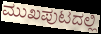
ಮುಖಪುಟದಲ್ಲಿ